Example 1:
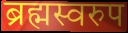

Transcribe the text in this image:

ब्रह्मस्वरुप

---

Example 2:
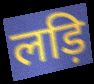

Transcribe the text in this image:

लड़ि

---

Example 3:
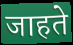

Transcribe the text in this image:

जाहते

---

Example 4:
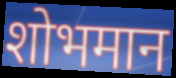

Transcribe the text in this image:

शोभमान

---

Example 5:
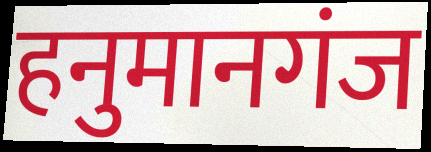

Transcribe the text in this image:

हनुमानगंज